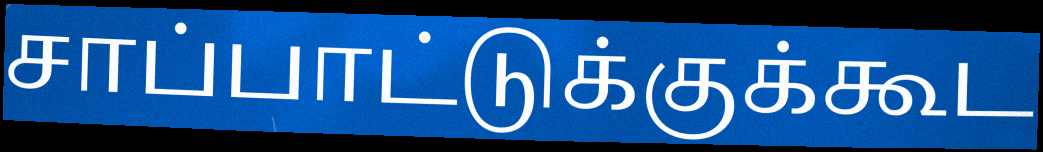
சாப்பாட்டுக்குக்கூட